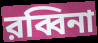
রব্বিনা